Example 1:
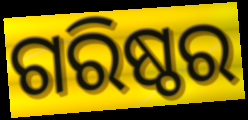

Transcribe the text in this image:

ଗରିଷ୍ଠର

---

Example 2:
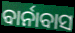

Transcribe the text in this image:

ବାର୍ନାବାସ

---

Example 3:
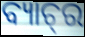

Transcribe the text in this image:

ବ୍ୟାଚ୍‌ର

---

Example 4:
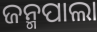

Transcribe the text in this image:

ଜନ୍ମପାଲା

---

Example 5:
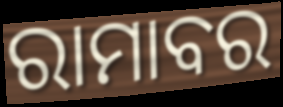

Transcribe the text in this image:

ରାମାବର